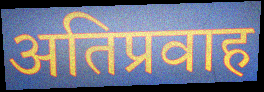
अतिप्रवाह